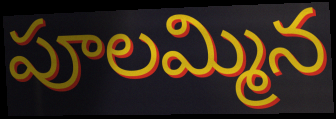
పూలమ్మిన